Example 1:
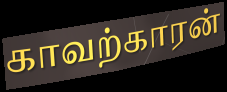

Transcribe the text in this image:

காவற்காரன்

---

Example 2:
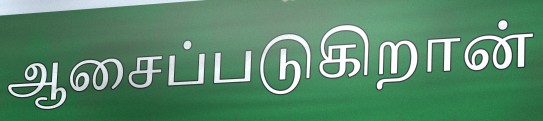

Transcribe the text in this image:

ஆசைப்படுகிறான்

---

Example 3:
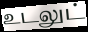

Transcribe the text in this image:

உடலுட்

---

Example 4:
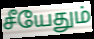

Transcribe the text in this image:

சீயேதும்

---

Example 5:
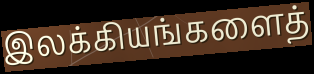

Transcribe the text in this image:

இலக்கியங்களைத்